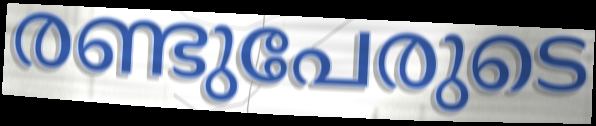
രണ്ടുപേരുടെ